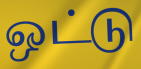
ஒட்டு